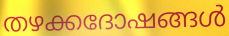
തഴക്കദോഷങ്ങൾ